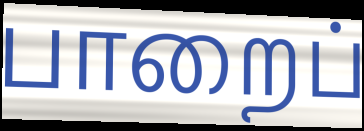
பாறைப்